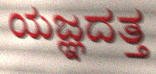
ಯಜ್ಞದತ್ತ